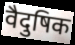
वैदुषिक